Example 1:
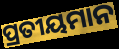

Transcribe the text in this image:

ପ୍ରତୀୟମାନ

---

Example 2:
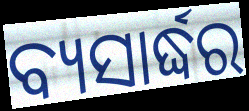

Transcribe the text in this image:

ବ୍ୟସାର୍ଦ୍ଧର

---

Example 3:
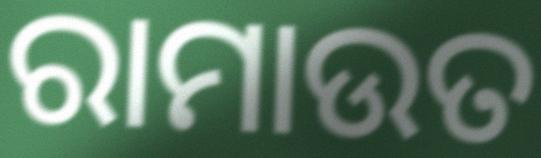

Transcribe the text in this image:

ରାମାଉତ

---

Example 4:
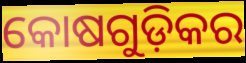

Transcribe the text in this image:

କୋଷଗୁଡ଼ିକର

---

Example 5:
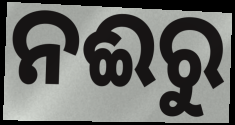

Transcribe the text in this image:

ନଈରୁ